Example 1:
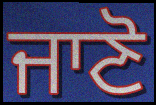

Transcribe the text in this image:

ਜਾਣੋ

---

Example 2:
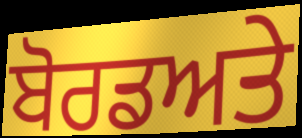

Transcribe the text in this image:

ਬੋਰਡਅਤੇ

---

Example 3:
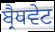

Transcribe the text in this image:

ਬ੍ਰੈਥਵੇਟ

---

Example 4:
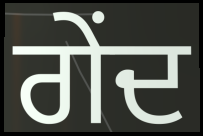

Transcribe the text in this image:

ਗੇਂਦ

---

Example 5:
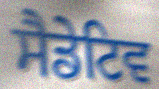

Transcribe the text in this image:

ਸੈਡੇਟਿਵ